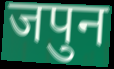
जपुन